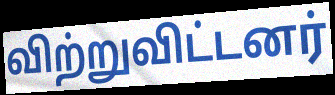
விற்றுவிட்டனர்